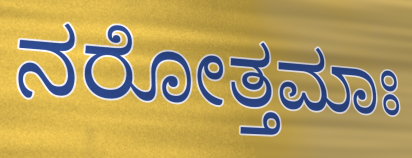
ನರೋತ್ತಮಾಃ